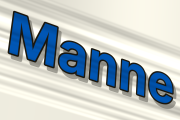
Manne